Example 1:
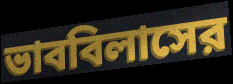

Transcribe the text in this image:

ভাববিলাসের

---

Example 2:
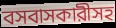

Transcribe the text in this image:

বসবাসকারীসহ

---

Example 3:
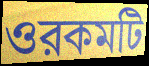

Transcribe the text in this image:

ওরকমটি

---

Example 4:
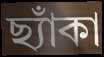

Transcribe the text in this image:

ছ্যাঁকা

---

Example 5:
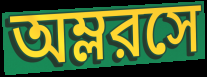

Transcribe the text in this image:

অম্লরসে